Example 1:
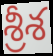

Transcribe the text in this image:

శ్రీశ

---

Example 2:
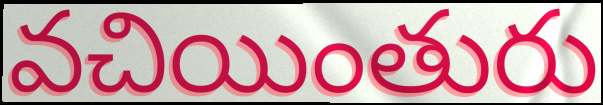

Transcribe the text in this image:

వచియింతురు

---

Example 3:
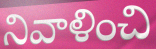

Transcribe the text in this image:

నివాళించి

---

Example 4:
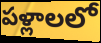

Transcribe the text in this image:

పళ్లాలలో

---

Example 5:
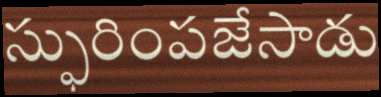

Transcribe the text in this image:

స్ఫురింపజేసాడు